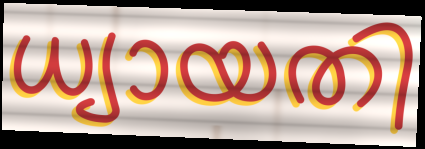
ധ്യായതി